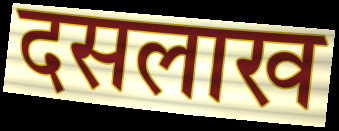
दसलाख